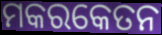
ମକରକେତନ